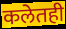
कलेतही